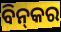
ବିନ୍‌କର